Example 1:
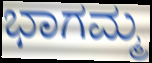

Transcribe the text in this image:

ಭಾಗಮ್ಮ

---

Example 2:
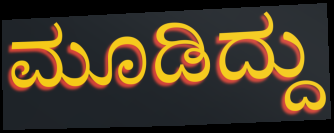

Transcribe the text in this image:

ಮೂಡಿದ್ದು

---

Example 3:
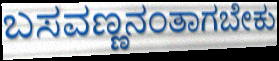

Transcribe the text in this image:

ಬಸವಣ್ಣನಂತಾಗಬೇಕು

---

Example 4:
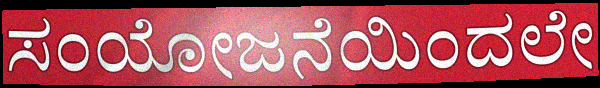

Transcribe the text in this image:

ಸಂಯೋಜನೆಯಿಂದಲೇ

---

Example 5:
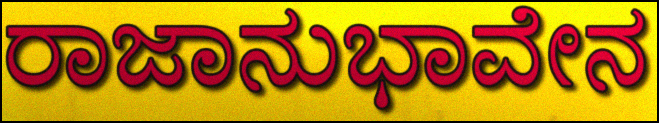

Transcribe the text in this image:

ರಾಜಾನುಭಾವೇನ